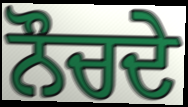
ਨੌਚਦੇ